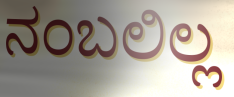
ನಂಬಲಿಲ್ಲ